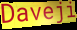
Daveji